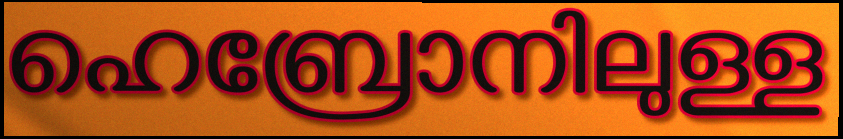
ഹെബ്രോനിലുള്ള